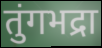
तुंगभद्रा